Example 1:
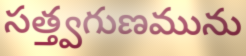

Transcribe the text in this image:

సత్త్వగుణమును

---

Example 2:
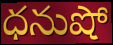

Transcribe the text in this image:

ధనుషో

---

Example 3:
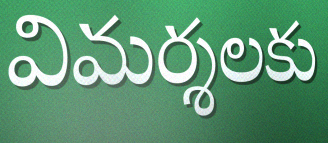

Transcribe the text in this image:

విమర్శలకు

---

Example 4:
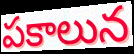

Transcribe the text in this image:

పకాలున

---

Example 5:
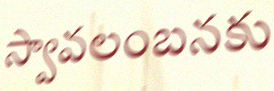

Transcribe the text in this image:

స్వావలంబనకు